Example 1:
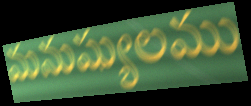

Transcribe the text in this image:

మనుష్యులము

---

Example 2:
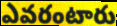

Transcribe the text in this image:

ఎవరంటారు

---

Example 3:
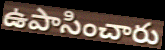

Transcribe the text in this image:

ఉపాసించారు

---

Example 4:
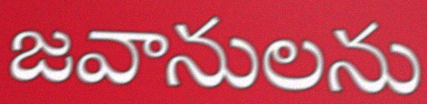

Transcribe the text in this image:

జవానులను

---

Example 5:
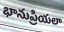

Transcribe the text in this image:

భానుప్రియలా